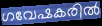
ഗവേഷകരിൽ